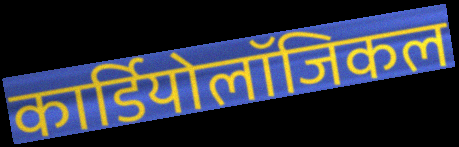
कार्डियोलॉजिकल